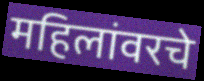
महिलांवरचे